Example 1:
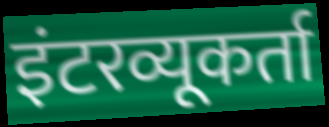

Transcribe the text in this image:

इंटरव्यूकर्ता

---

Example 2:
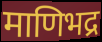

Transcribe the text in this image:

माणिभद्र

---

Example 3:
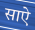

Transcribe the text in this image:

साऐ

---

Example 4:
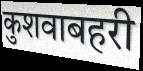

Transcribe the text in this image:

कुशवाबहरी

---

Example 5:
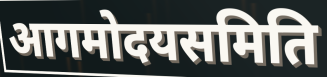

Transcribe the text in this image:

आगमोदयसमिति